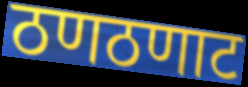
ठणठणाट